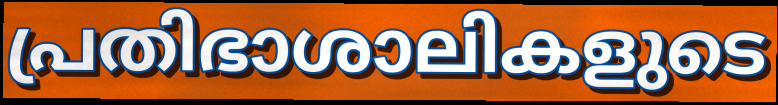
പ്രതിഭാശാലികളുടെ